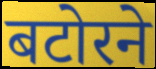
बटोरने